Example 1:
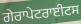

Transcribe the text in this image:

ਗੇਰਾਪੇਟਰਾਈਟਸ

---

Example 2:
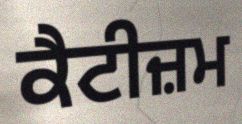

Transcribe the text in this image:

ਕੈਟੀਜ਼ਮ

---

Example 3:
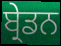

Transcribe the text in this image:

ਬ੍ਰੇਡਨ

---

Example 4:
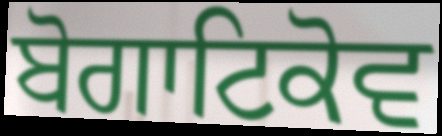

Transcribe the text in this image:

ਬੋਗਾਟਿਕੋਵ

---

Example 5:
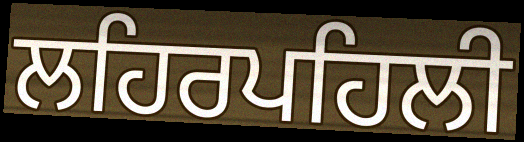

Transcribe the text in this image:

ਲਹਿਰਪਹਿਲੀ